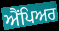
ਐਂਪਿਅਰ